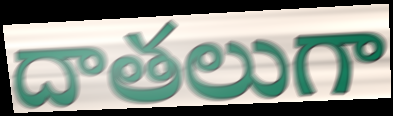
దాతలుగా